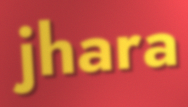
jhara